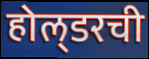
होल्डरची